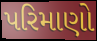
પરિમાણો